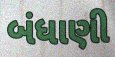
બંધાણી